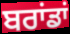
ਬਰਾਂਡਾਂ